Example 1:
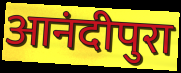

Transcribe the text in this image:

आनंदीपुरा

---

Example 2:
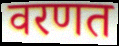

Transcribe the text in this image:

वरणत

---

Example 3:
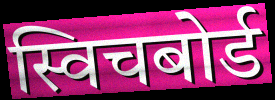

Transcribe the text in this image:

स्विचबोर्ड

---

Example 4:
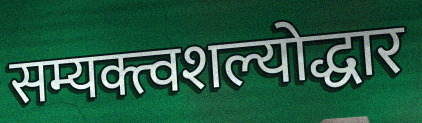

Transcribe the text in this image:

सम्यक्त्वशल्योद्धार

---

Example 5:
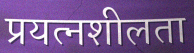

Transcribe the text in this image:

प्रयत्नशीलता